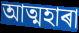
আত্মহাৰা